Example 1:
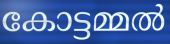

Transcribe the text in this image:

കോട്ടമ്മൽ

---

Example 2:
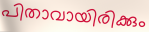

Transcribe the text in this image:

പിതാവായിരിക്കും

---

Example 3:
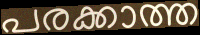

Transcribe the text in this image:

പരക്കാത്ത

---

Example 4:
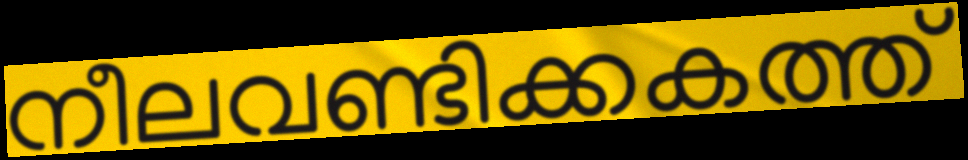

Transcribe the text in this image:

നീലവണ്ടിക്കകത്ത്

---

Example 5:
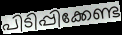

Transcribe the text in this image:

പിടിപ്പിക്കേണ്ട